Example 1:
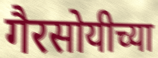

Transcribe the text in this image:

गैरसोयीच्या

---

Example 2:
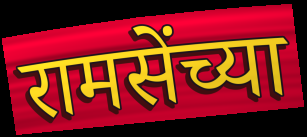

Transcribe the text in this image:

रामसेंच्या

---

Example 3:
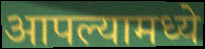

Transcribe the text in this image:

आपल्यामध्ये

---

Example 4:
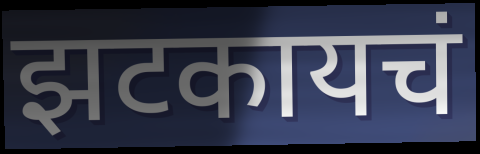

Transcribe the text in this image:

झटकायचं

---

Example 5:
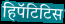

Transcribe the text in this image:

हिपॅटिटिस